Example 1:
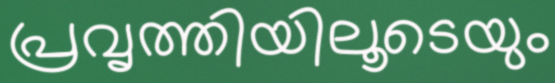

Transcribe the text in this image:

പ്രവൃത്തിയിലൂടെയും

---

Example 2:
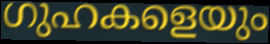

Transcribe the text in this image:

ഗുഹകളെയും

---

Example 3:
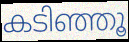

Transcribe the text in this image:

കടിഞ്ഞൂ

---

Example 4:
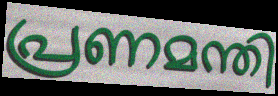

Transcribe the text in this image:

പ്രണമന്തി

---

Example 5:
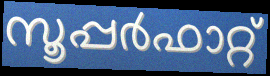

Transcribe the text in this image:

സൂപ്പർഫാറ്റ്